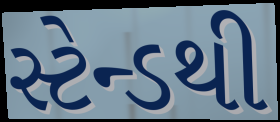
સ્ટેન્ડથી